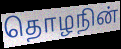
தொழநின்